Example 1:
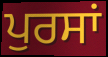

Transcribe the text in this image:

ਪੁਰਸਾਂ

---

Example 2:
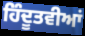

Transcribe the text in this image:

ਹਿੰਦੂਤਵੀਆਂ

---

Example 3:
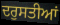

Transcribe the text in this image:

ਦਰੁਸਤੀਆਂ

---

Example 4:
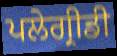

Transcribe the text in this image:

ਪਲੇਗ੍ਰੀਡੀ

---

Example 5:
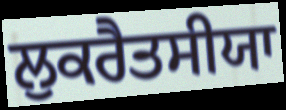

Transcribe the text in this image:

ਲੁਕਰੈਤਸੀਯਾ